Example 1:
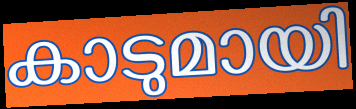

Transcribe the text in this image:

കാടുമായി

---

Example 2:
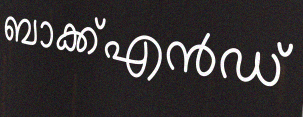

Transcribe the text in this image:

ബാക്ക്എൻഡ്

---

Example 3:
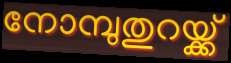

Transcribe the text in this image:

നോമ്പുതുറയ്ക്ക്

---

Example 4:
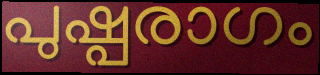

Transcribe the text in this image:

പുഷ്പരാഗം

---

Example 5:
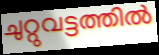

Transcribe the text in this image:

ചുറ്റുവട്ടത്തിൽ